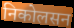
निकोलसन